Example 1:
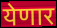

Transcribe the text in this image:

येणार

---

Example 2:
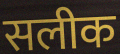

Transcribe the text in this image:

सलीक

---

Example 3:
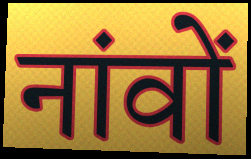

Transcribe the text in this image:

नांवों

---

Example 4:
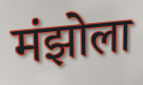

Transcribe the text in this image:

मंझोला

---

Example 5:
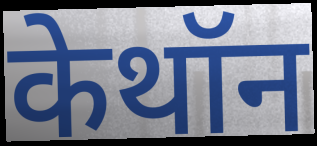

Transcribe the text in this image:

केथॉन